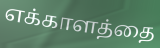
எக்காளத்தை